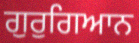
ਗੁਰੁਗਿਆਨ